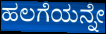
ಹಲಗೆಯನ್ನೇ